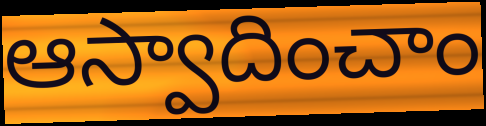
ఆస్వాదించాం